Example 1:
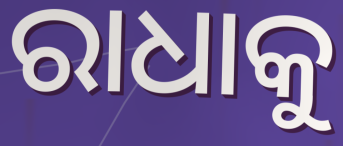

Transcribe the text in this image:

ରାଧାକୁ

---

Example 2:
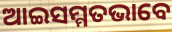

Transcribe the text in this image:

ଆଇସମ୍ମତଭାବେ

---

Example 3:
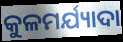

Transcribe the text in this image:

କୁଳମର୍ଯ୍ୟାଦା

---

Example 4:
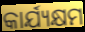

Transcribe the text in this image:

କାର୍ଯ୍ୟକ୍ଷମ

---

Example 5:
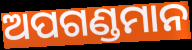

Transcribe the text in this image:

ଅପଗଣ୍ଡମାନ